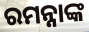
ରମନ୍ନାଙ୍କ